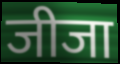
जीजा